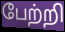
பேற்றி